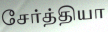
சேர்த்தியா